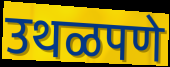
उथळपणे